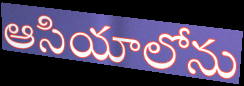
ఆసియాలోను